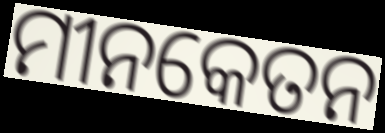
ମୀନକେତନ